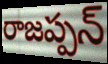
రాజప్పన్